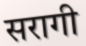
सरागी